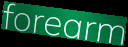
forearm